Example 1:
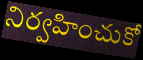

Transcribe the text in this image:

నిర్వహించుకో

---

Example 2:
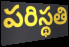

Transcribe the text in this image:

పరిస్థతి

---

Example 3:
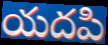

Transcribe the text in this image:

యదపి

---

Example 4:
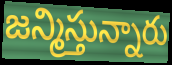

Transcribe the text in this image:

జన్మిస్తున్నారు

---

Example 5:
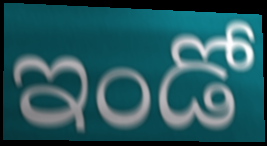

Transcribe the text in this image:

ఇండో